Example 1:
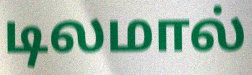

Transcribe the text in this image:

டிலமால்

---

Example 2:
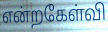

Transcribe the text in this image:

என்றகேள்வி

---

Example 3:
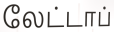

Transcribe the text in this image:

லேட்டாப்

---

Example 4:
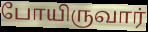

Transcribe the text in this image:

போயிருவார்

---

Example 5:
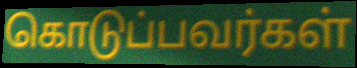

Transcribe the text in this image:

கொடுப்பவர்கள்